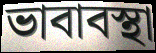
ভাবাবস্থা